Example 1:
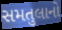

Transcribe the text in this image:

સમતુલાનો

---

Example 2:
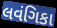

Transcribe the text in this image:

લવંગિકા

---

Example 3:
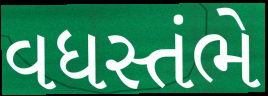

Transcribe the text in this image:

વધસ્તંભે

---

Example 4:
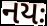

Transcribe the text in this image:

નયઃ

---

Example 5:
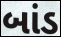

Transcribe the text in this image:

બાંડ